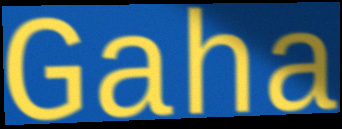
Gaha